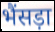
भैंसड़ा